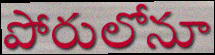
పోరులోనూ